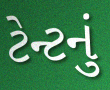
ટેન્ટનું